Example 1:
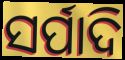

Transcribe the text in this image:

ସର୍ପାଦି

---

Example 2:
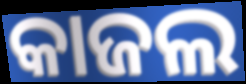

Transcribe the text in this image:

କାଜଲ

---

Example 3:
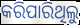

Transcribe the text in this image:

କରିପାରିଥିଲୁ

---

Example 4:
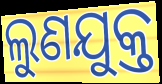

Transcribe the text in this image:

ଲୁଣଯୁକ୍ତ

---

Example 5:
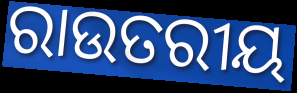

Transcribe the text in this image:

ରାଉତରୀୟ